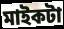
মাইকটা